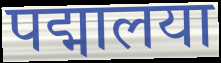
पद्मालया